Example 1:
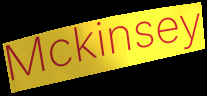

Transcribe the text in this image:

Mckinsey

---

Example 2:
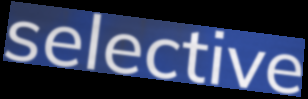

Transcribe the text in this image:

selective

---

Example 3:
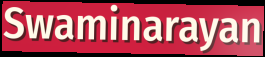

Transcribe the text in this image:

Swaminarayan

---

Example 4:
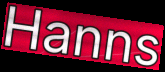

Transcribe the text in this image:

Hanns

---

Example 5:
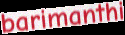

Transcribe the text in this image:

barimanthi